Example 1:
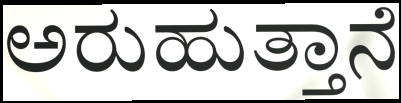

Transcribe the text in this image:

ಅರುಹುತ್ತಾನೆ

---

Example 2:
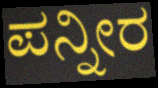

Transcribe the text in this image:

ಪನ್ನೀರ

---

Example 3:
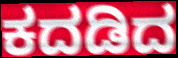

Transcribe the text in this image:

ಕದಡಿದ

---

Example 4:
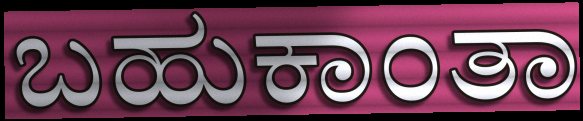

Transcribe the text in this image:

ಬಹುಕಾಂತಾ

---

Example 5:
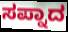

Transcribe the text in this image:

ಸಪ್ನಾದ